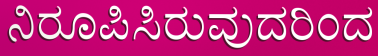
ನಿರೂಪಿಸಿರುವುದರಿಂದ